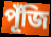
পূঁজি